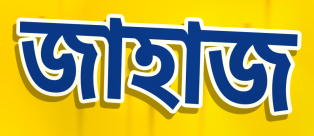
জাহাজ